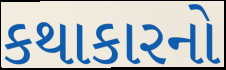
કથાકારનો